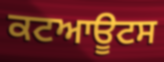
ਕਟਆਊਟਸ